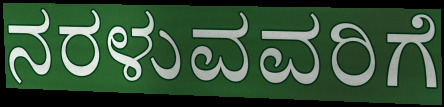
ನರಳುವವರಿಗೆ